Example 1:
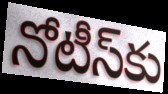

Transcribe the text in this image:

నోటీస్‌కు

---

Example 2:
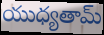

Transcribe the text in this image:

యుధ్యతామ్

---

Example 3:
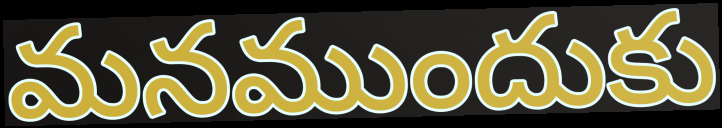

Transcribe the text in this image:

మనముందుకు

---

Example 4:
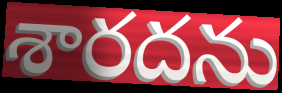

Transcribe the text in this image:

శారదను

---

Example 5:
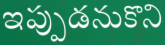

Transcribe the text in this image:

ఇప్పుడనుకొని